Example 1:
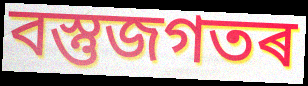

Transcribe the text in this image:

বস্তুজগতৰ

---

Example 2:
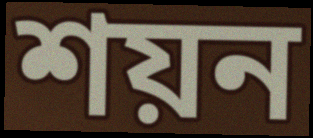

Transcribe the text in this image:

শয়ন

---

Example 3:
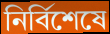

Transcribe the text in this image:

নিৰ্বিশেষে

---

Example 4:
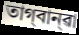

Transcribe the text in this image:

তাগ্‌বান্‌ৱা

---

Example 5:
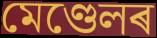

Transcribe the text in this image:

মেণ্ডেলৰ